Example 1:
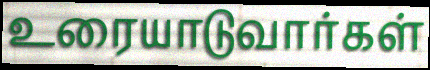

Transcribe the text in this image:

உரையாடுவார்கள்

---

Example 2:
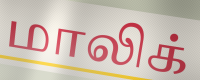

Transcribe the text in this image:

மாலிக்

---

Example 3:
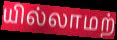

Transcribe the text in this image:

யில்லாமற்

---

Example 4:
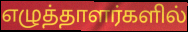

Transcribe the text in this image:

எழுத்தாளர்களில்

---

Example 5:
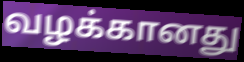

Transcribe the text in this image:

வழக்கானது